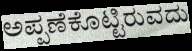
ಅಪ್ಪಣೆಕೊಟ್ಟಿರುವದು